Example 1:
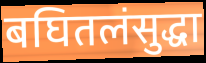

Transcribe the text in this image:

बघितलंसुद्धा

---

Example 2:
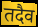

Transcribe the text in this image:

तदैव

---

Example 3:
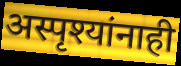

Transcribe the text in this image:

अस्पृश्यांनाही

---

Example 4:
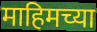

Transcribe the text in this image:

माहिमच्या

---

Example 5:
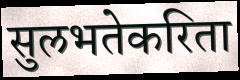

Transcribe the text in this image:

सुलभतेकरिता